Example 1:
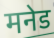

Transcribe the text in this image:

मनेड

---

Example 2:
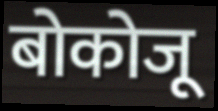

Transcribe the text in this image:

बोकोजू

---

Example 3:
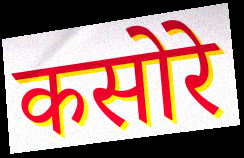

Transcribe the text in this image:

कसोरे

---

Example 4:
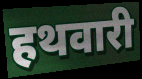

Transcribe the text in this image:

हथवारी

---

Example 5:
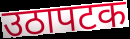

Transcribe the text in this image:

उठापटक